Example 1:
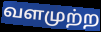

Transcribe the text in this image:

வளமுற்ற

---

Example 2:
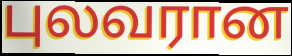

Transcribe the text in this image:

புலவரான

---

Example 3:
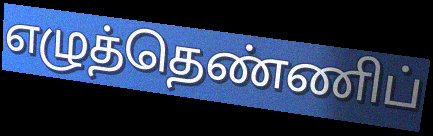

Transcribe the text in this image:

எழுத்தெண்ணிப்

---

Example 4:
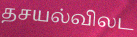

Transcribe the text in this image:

தசயல்விலட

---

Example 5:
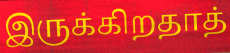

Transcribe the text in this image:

இருக்கிறதாத்